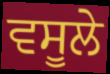
ਵਸੂਲੇ